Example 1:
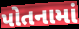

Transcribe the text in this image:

પોતનામાં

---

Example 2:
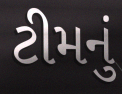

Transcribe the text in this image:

ટીમનું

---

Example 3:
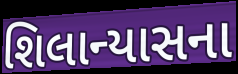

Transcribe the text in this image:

શિલાન્યાસના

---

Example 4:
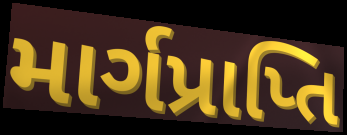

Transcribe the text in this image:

માર્ગપ્રાપ્તિ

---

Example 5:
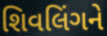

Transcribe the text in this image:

શિવલિંગને